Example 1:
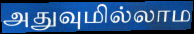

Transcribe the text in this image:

அதுவுமில்லாம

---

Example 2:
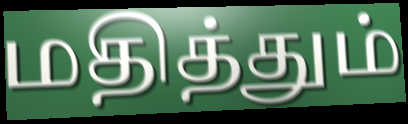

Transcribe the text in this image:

மதித்தும்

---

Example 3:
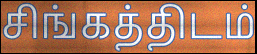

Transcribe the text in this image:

சிங்கத்திடம்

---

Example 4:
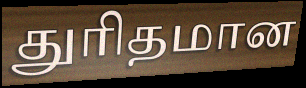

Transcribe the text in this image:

துரிதமான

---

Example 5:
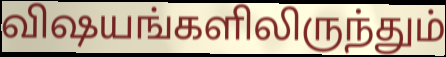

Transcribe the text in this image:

விஷயங்களிலிருந்தும்